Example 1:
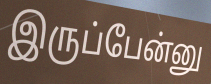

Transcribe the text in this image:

இருப்பேன்னு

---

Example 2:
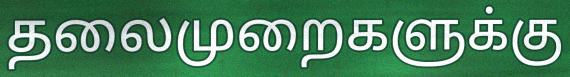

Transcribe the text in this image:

தலைமுறைகளுக்கு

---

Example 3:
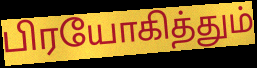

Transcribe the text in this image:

பிரயோகித்தும்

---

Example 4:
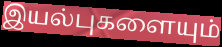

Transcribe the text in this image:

இயல்புகளையும்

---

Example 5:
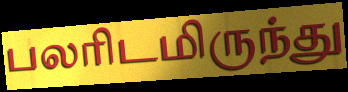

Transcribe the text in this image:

பலரிடமிருந்து